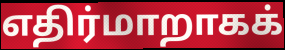
எதிர்மாறாகக்